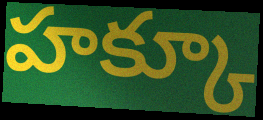
హక్కూ